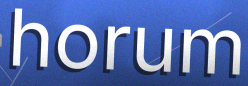
horum